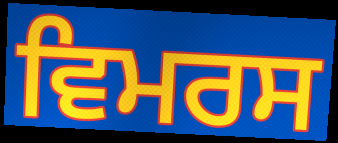
ਵਿਮਰਸ